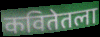
कवितेतला